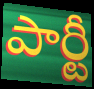
పార్టీ